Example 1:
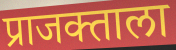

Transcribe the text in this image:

प्राजक्ताला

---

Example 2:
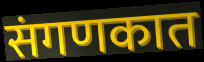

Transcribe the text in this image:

संगणकात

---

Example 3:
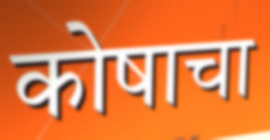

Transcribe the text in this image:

कोषाचा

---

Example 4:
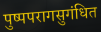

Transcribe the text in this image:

पुष्पपरागसुगंधित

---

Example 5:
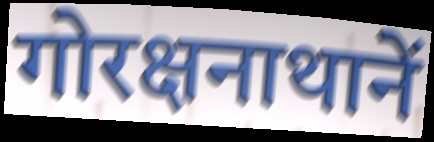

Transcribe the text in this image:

गोरक्षनाथानें